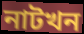
নাটখন